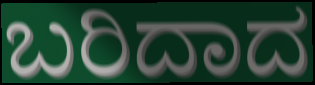
ಬರಿದಾದ